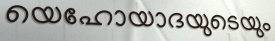
യെഹോയാദയുടെയും